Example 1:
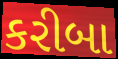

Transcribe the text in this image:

કરીબા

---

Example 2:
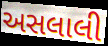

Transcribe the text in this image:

અસલાલી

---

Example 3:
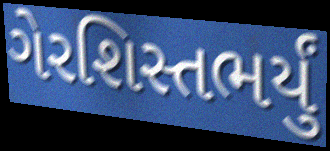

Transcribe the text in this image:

ગેરશિસ્તભર્યું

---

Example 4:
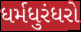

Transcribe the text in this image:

ધર્મધુરંધરો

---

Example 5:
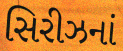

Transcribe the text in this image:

સિરીઝનાં